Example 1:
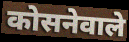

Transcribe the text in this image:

कोसनेवाले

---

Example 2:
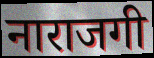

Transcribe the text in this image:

नाराजगी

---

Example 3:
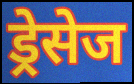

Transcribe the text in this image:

ड्रेसेज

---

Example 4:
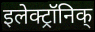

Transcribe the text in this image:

इलेक्ट्रॉनिक्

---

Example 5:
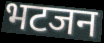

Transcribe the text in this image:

भटजन